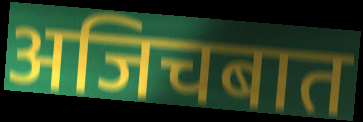
अजिचबात